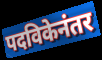
पदविकेनंतर